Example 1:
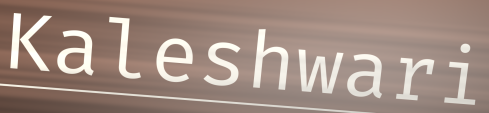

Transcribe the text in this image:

Kaleshwari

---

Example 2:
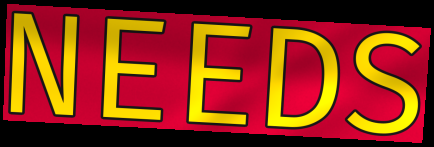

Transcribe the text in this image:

NEEDS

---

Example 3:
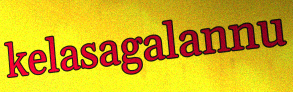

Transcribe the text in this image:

kelasagalannu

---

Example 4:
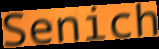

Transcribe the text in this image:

Senich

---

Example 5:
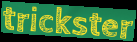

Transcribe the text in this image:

trickster